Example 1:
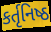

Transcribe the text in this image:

કર્તૃનિષ્ઠ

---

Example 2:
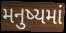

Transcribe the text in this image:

મનુષ્યમાં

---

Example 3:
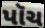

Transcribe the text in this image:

પૉચ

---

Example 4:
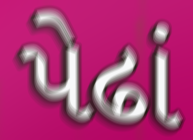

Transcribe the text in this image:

પેઢાં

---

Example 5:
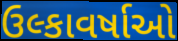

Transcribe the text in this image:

ઉલ્કાવર્ષાઓ